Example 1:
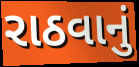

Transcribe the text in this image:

રાઠવાનું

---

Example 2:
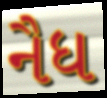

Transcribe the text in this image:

નૈધ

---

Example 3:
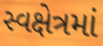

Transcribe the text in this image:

સ્વક્ષેત્રમાં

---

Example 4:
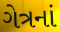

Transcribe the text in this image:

ગેત્રનાં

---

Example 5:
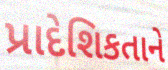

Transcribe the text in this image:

પ્રાદેશિકતાને